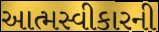
આત્મસ્વીકારની